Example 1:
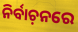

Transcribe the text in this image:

ନିର୍ବାଚ଼ନରେ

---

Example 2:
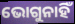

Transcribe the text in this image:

ଭୋଗୁନାହିଁ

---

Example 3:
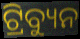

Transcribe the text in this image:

ଟ୍ରିବ୍ୟୁନ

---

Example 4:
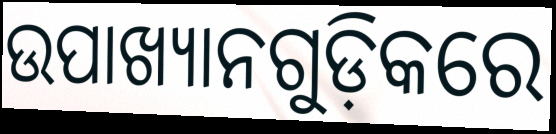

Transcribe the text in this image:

ଉପାଖ୍ୟାନଗୁଡ଼ିକରେ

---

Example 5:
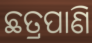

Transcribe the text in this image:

ଛତ୍ରପାଣି